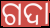
ଗଦା